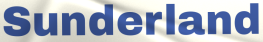
Sunderland